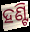
ହଣ୍ଟି